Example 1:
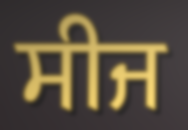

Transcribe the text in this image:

ਸੀਜ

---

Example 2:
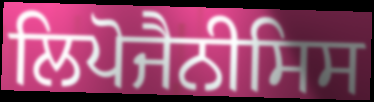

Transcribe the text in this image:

ਲਿਪੋਜੈਨੀਸਿਸ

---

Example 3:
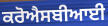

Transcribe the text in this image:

ਕਰੋਐਸਬੀਆਈ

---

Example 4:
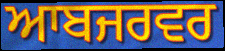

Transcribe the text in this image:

ਆਬਜਰਵਰ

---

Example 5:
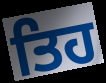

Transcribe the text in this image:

ਤਿਹ